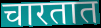
चारतात